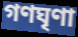
গণঘৃণা